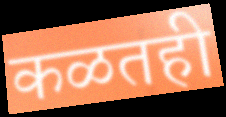
कळतही